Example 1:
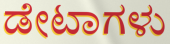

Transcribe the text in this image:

ಡೇಟಾಗಳು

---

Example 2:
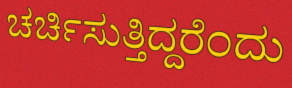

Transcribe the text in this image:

ಚರ್ಚಿಸುತ್ತಿದ್ದರೆಂದು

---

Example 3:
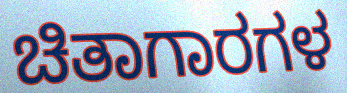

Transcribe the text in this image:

ಚಿತಾಗಾರಗಳ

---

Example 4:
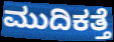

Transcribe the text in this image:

ಮುದಿಕತ್ತೆ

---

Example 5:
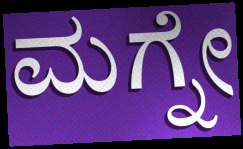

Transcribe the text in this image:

ಮಗ್ನೇ